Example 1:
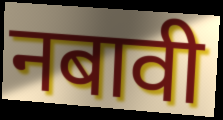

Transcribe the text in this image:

नबावी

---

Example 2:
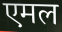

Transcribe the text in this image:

एमल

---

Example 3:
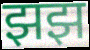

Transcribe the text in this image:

झझ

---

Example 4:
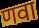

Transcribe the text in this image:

णवा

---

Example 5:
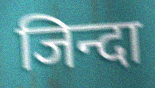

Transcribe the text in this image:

जिन्‍दा